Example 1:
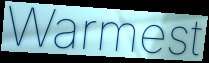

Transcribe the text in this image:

Warmest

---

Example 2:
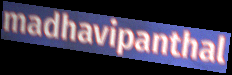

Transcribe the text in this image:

madhavipanthal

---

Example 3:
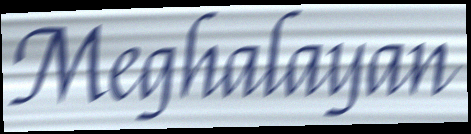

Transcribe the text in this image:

Meghalayan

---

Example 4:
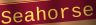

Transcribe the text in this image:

Seahorse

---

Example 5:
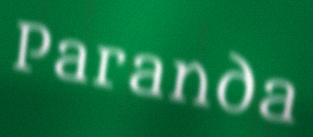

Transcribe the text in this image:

Paranda